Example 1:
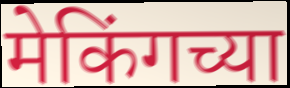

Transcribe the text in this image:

मेकिंगच्या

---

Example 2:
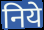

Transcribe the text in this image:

निये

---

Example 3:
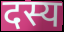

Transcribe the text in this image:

दस्य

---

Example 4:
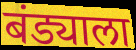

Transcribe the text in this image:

बंड्याला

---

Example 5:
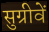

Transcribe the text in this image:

सुग्रीवें